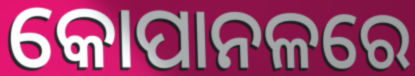
କୋପାନଳରେ